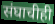
संघाचीही